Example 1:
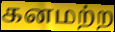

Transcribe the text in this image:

கனமற்ற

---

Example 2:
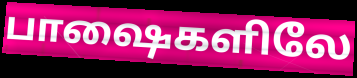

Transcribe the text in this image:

பாஷைகளிலே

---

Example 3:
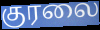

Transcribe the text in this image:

குரலை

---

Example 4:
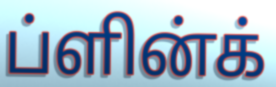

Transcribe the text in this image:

ப்ளின்க்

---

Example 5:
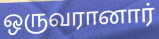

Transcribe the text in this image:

ஒருவரானார்